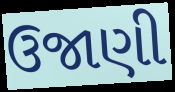
ઉજાણી